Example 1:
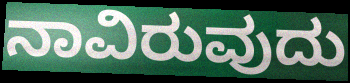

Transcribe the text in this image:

ನಾವಿರುವುದು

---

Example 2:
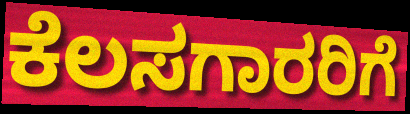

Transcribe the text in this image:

ಕೆಲಸಗಾರರಿಗೆ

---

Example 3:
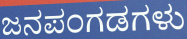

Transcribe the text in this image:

ಜನಪಂಗಡಗಳು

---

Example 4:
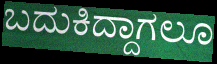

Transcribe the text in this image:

ಬದುಕಿದ್ದಾಗಲೂ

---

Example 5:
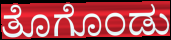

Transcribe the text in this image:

ತೊಗೊಂಡು